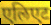
एलिएट